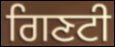
ਗਿਣਟੀ